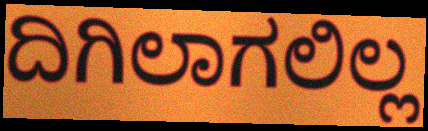
ದಿಗಿಲಾಗಲಿಲ್ಲ